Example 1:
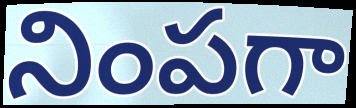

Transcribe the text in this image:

నింపగా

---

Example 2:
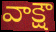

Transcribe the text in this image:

వాక్షౌ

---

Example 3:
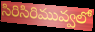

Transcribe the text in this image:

సిరిసిరిమువ్వలో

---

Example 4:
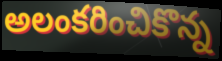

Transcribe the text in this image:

అలంకరించికొన్న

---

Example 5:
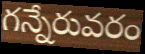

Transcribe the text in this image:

గన్నేరువరం